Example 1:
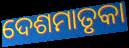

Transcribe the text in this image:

ଦେଶମାତୃକା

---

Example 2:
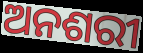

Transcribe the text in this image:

ଅନଶରୀ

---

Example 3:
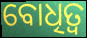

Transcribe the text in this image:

ବୋଧିତ୍ୱ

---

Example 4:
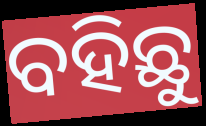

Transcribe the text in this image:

ବହିଛୁ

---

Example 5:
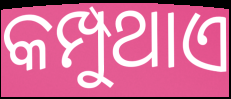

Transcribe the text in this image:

କମ୍ପୁଥାଏ